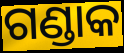
ଗଣ୍ଡାକ